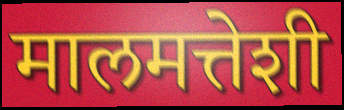
मालमत्तेशी